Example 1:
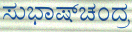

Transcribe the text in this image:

ಸುಭಾಷ್‌ಚಂದ್ರ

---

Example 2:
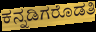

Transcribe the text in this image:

ಕನ್ನಡಿಗರೊಡತಿ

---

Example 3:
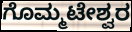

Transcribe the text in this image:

ಗೊಮ್ಮಟೇಶ್ವರ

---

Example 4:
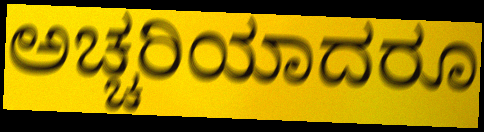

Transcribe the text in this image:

ಅಚ್ಚರಿಯಾದರೂ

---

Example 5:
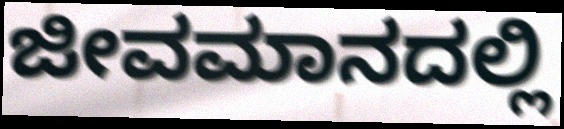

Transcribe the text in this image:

ಜೀವಮಾನದಲ್ಲಿ